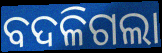
ବଦଳିଗଲା